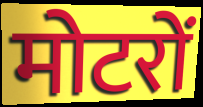
मोटरों